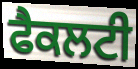
ਫੈਕਲਟੀ